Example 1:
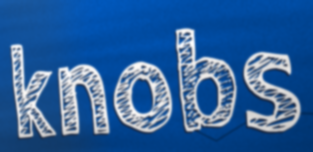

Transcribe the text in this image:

knobs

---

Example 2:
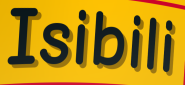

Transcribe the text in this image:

Isibili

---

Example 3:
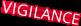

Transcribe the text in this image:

VIGILANCE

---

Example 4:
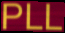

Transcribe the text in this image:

PLL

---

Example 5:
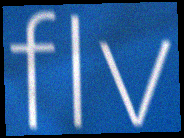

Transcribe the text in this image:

flv